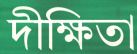
দীক্ষিতা